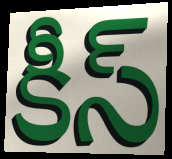
కీస్